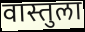
वास्तुला